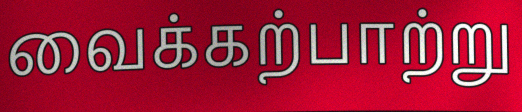
வைக்கற்பாற்று